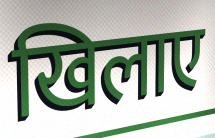
खिलाए